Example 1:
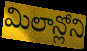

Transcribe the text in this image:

మిలాన్లోని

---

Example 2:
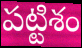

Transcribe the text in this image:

పట్టిశం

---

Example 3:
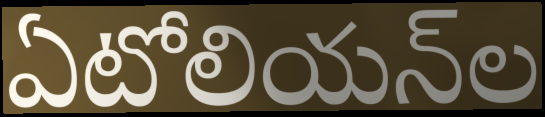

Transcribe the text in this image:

ఏటోలియన్‌ల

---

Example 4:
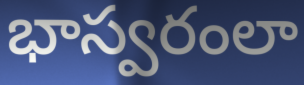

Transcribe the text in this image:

భాస్వరంలా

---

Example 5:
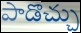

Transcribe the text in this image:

పాడొచ్చు